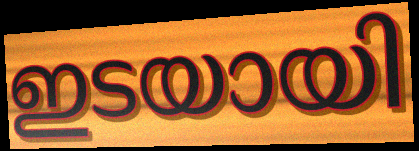
ഇടയായി